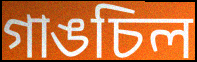
গাঙচিল